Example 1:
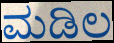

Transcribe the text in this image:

ಮಡಿಲ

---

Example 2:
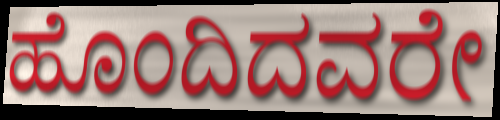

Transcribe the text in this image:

ಹೊಂದಿದವರೇ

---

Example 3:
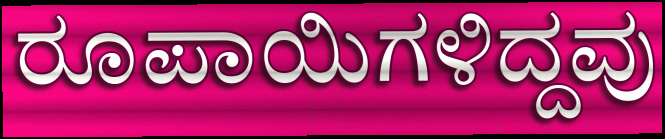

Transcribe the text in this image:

ರೂಪಾಯಿಗಳಿದ್ದವು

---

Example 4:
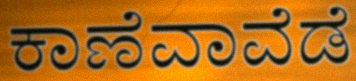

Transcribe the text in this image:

ಕಾಣೆವಾವೆಡೆ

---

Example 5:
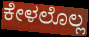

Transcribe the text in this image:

ಕೇಳಲೊಲ್ಲ